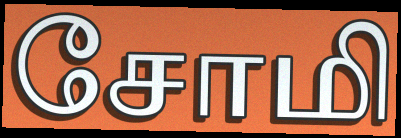
சோமி